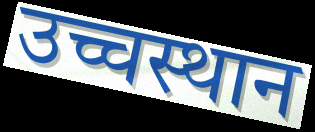
उच्चस्थान